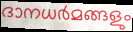
ദാനധർമങ്ങളും